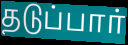
தடுப்பார்